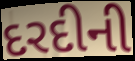
દરદીની